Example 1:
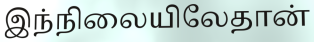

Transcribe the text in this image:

இந்நிலையிலேதான்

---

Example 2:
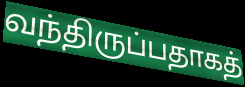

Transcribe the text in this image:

வந்திருப்பதாகத்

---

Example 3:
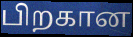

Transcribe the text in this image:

பிறகான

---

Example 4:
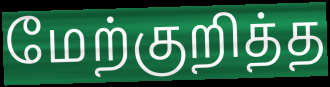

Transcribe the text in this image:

மேற்குறித்த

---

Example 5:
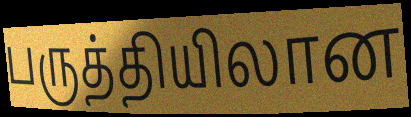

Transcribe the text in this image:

பருத்தியிலான